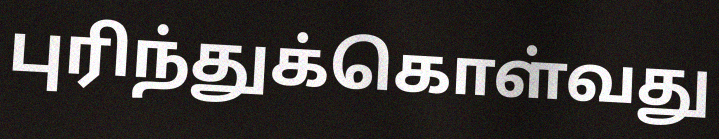
புரிந்துக்கொள்வது